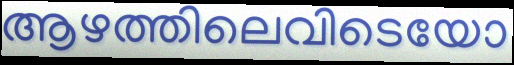
ആഴത്തിലെവിടെയോ